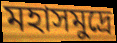
মহাসমুদ্রে